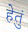
हेतुं